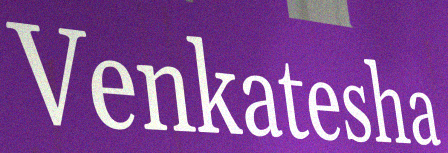
Venkatesha